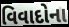
વિવાદોના